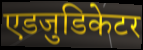
एडजुडिकेटर